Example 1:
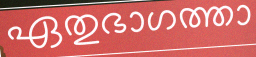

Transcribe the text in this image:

ഏതുഭാഗത്താ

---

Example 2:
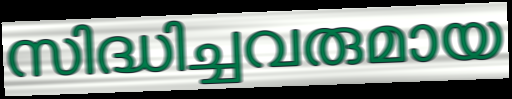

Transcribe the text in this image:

സിദ്ധിച്ചവരുമായ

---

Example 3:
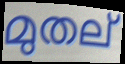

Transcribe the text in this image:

മുതല്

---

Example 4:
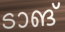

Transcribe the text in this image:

ടാങ്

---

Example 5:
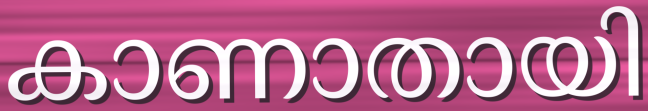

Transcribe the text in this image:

കാണാതായി